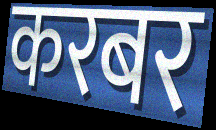
करबर